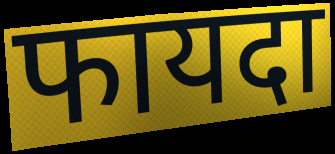
फायदा